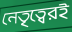
নেতৃত্বেরই